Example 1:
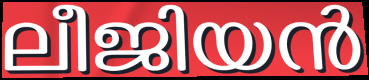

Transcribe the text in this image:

ലീജിയൻ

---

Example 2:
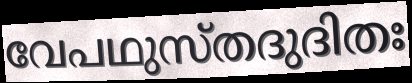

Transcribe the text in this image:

വേപഥുസ്തദുദിതഃ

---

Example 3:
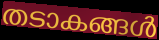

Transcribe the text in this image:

തടാകങ്ങൾ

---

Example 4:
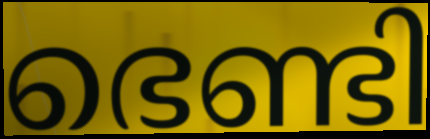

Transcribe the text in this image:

ഭെണ്ടി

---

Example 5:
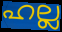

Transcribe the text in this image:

ഹല്ല